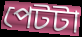
পেটটা